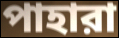
পাহারা